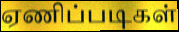
ஏணிப்படிகள்